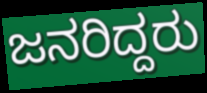
ಜನರಿದ್ದರು